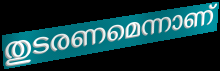
തുടരണമെന്നാണ്